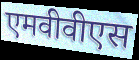
एमवीवीएस